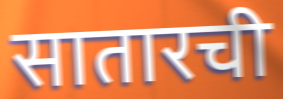
सातारची